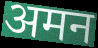
अमन